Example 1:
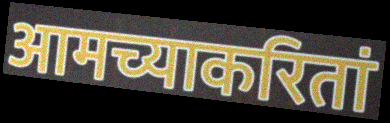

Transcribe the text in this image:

आमच्याकरितां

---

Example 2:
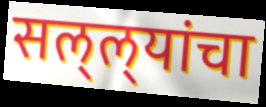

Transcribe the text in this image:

सल्ल्यांचा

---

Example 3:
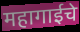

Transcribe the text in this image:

महागाईचे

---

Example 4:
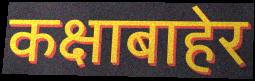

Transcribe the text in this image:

कक्षाबाहेर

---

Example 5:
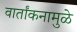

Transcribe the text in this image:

वार्तांकनामुळे